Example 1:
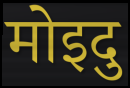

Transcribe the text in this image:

मोइदु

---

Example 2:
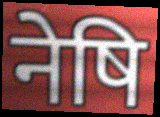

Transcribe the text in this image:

नेषि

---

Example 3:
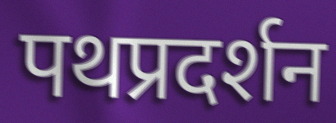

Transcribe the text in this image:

पथप्रदर्शन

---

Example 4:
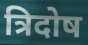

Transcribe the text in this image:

त्रिदोष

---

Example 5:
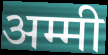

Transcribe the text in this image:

अम्मी